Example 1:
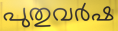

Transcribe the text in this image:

പുതുവർഷ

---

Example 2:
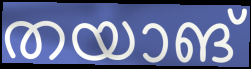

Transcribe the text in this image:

തയാങ്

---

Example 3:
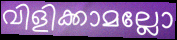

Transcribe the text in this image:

വിളിക്കാമല്ലോ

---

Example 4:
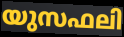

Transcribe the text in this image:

യുസഫലി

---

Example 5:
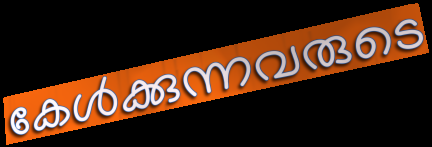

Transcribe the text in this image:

കേൾക്കുന്നവരുടെ